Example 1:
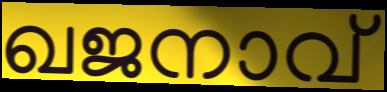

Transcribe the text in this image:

ഖജനാവ്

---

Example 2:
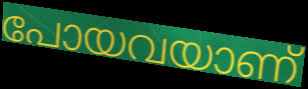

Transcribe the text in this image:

പോയവയാണ്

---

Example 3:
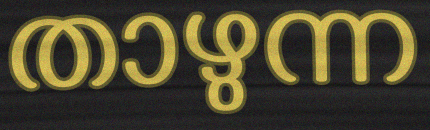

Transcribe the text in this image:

താഴുന്ന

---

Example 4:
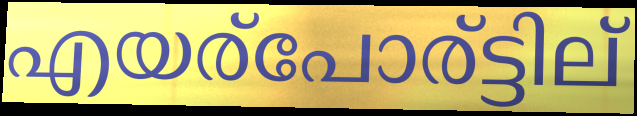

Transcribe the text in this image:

എയര്പോര്ട്ടില്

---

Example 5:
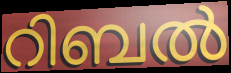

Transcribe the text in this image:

റിബൽ